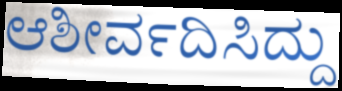
ಆಶೀರ್ವದಿಸಿದ್ದು